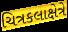
ચિત્રકલાક્ષેત્રે